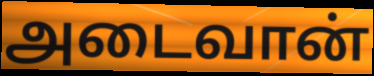
அடைவான்